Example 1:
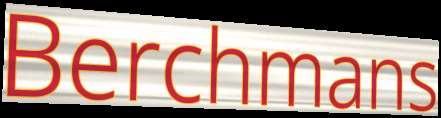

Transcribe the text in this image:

Berchmans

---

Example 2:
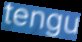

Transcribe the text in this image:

tengu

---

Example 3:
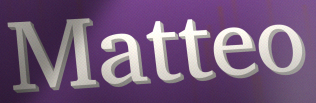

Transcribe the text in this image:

Matteo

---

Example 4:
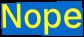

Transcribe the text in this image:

Nope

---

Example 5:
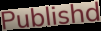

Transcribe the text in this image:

Publishd